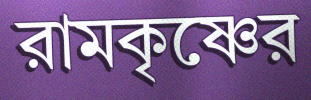
রামকৃষ্ণের